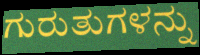
ಗುರುತುಗಳನ್ನು